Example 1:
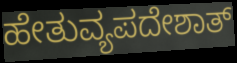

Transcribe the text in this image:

ಹೇತುವ್ಯಪದೇಶಾತ್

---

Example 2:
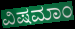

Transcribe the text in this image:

ವಿಷಮಾಂ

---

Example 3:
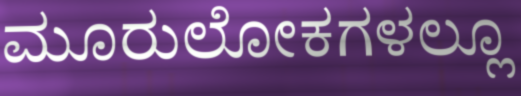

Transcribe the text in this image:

ಮೂರುಲೋಕಗಳಲ್ಲೂ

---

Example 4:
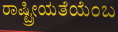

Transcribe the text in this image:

ರಾಷ್ಟ್ರೀಯತೆಯೆಂಬ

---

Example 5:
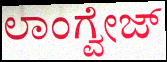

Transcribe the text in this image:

ಲಾಂಗ್ವೇಜ್